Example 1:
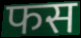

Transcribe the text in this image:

फस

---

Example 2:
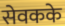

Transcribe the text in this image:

सेवकके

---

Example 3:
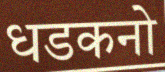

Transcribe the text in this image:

धडकनो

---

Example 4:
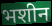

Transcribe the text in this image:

भशीन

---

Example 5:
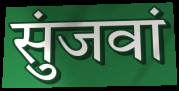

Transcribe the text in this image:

सुंजवां